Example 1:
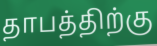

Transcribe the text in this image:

தாபத்திற்கு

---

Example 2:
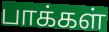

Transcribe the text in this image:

பாக்கள்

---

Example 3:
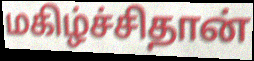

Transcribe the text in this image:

மகிழ்ச்சிதான்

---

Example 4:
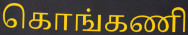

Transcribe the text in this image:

கொங்கணி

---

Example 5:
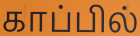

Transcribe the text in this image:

காப்பில்